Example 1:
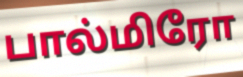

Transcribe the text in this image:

பால்மிரோ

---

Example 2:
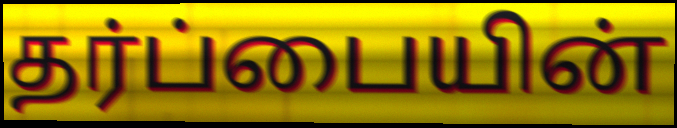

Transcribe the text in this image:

தர்ப்பையின்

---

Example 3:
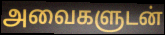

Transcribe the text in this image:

அவைகளுடன்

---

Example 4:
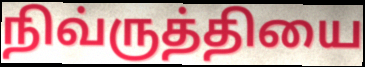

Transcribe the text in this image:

நிவ்ருத்தியை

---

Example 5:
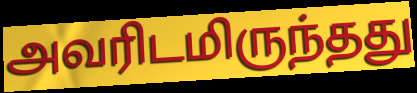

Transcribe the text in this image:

அவரிடமிருந்தது